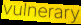
vulnerary